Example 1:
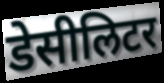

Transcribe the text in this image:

डेसीलिटर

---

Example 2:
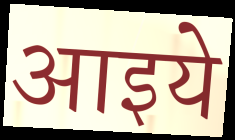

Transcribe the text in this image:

आइये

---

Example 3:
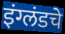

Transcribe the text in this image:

इंग्लंडचे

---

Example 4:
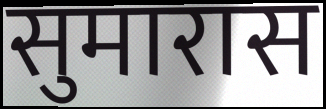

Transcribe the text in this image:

सुमारास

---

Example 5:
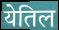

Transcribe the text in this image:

येतिल